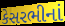
કેસરભીનાં